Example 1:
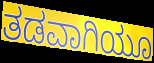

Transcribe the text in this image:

ತಡವಾಗಿಯೂ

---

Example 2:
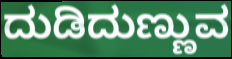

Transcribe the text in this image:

ದುಡಿದುಣ್ಣುವ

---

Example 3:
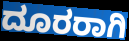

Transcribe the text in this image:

ದೂರರಾಗಿ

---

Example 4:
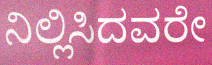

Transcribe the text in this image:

ನಿಲ್ಲಿಸಿದವರೇ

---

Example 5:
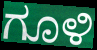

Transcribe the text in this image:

ಗೂಳಿ